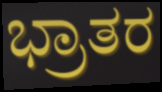
ಭ್ರಾತರ